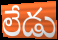
లేడు